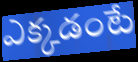
ఎక్కడంటే